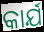
କାର୍ଯ